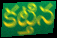
కట్తిన